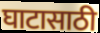
घाटासाठी